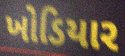
ખોડિયાર